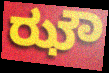
ಝೌ